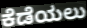
ಕೆಡೆಯಲು